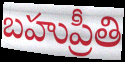
బహుప్రీతి